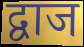
द्वाज